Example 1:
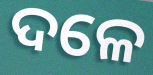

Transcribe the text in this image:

ଦଳେ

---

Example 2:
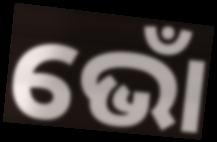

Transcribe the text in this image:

ଭୋଁ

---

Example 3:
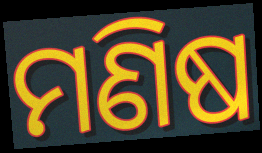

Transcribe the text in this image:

ମଣିଷ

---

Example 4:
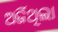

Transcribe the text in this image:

ଅର୍ଜିଥିଲା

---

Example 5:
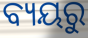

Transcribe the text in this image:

ବ୍ୟୟରୁ